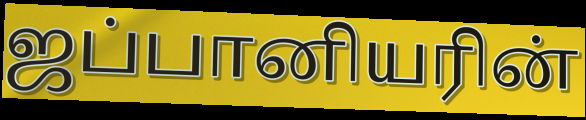
ஜப்பானியரின்